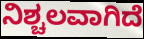
ನಿಶ್ಚಲವಾಗಿದೆ